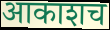
आकाशच